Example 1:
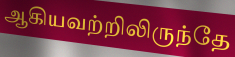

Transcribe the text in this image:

ஆகியவற்றிலிருந்தே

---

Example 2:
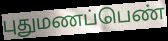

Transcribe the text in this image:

புதுமணப்பெண்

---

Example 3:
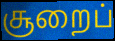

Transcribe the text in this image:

சூறைப்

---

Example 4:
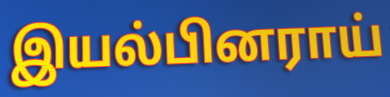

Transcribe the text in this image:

இயல்பினராய்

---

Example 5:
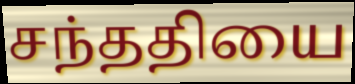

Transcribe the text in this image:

சந்ததியை